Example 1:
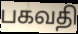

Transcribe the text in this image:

பகவதி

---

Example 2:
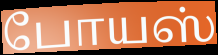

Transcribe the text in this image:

போயஸ்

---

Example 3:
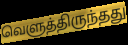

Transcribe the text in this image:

வெளுத்திருந்தது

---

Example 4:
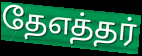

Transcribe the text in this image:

தேஎத்தர்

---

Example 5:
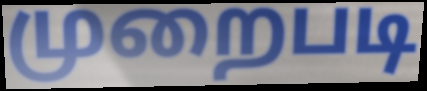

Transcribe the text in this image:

முறைபடி